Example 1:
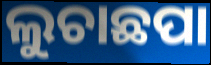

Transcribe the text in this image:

ଲୁଚାଛପା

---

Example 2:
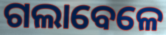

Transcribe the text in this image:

ଗଲାବେଳେ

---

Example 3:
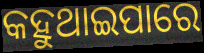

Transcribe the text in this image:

କହୁଥାଇପାରେ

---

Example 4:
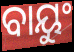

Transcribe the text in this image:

ବାୟୁଂ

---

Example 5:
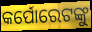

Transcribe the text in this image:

କର୍ପୋରେଟଙ୍କୁ